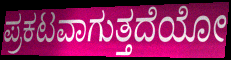
ಪ್ರಕಟವಾಗುತ್ತದೆಯೋ